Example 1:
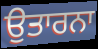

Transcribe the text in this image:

ਉਤਾਰਨਾ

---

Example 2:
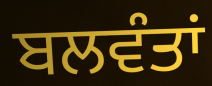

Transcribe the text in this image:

ਬਲਵੰਤਾਂ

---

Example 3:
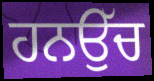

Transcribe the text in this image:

ਹਨਉੱਚ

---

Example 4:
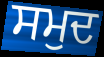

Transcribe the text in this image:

ਸਮੁਦ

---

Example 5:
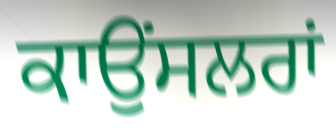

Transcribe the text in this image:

ਕਾਉਂਸਲਰਾਂ